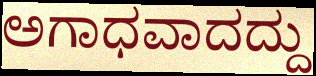
ಅಗಾಧವಾದದ್ದು